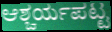
ಆಶ್ಚರ್ಯಪಟ್ಟ